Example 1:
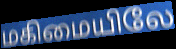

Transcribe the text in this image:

மகிமையிலே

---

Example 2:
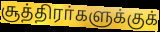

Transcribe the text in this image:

சூத்திரர்களுக்குக்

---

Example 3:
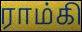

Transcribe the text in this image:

ராம்கி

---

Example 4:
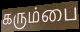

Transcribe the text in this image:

கரும்பை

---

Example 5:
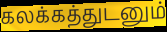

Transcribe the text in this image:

கலக்கத்துடனும்